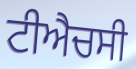
ਟੀਐਚਸੀ